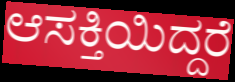
ಆಸಕ್ತಿಯಿದ್ದರೆ